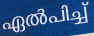
ഏൽപിച്ച്